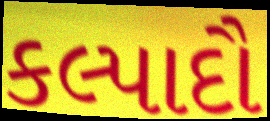
કલ્પાદૌ